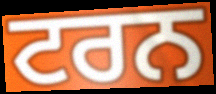
ਟਰਨ